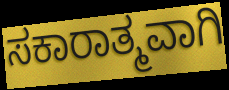
ಸಕಾರಾತ್ಮವಾಗಿ